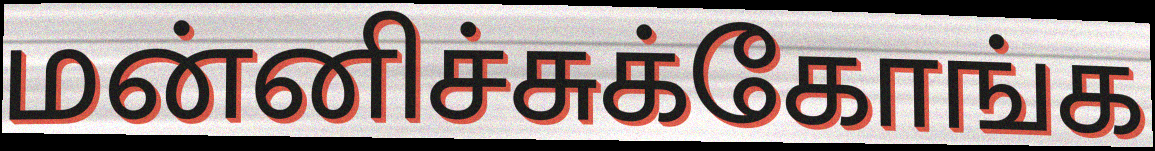
மன்னிச்சுக்கோங்க